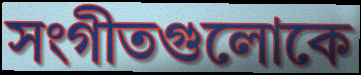
সংগীতগুলোকে